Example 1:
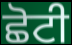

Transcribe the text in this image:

ਛੋਟੀ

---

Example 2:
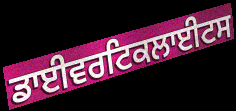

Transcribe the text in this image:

ਡਾਈਵਰਟਿਕਲਾਈਟਸ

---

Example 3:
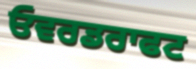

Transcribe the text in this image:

ਓਵਰਡਰਾਫਟ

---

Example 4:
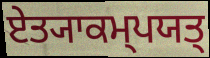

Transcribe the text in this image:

ਏਤ੍ਯਾਕਮ੍ਪਯਤ੍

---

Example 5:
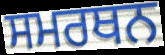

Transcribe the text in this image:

ਸਮਰਥਨ